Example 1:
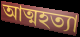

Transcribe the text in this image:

আত্মহত্যা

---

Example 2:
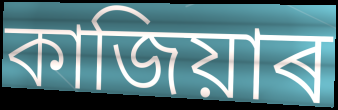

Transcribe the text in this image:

কাজিয়াৰ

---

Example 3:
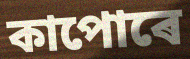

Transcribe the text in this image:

কাপোৰে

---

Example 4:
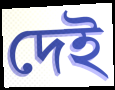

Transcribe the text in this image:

দেই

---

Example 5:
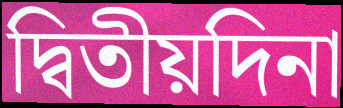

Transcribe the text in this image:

দ্বিতীয়দিনা